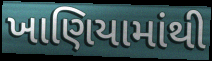
ખાણિયામાંથી